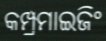
କମ୍ପ୍ରମାଇଜିଂ